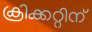
ക്രിക്കറ്റിന്